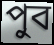
পুব